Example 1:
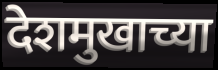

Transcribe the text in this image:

देशमुखाच्या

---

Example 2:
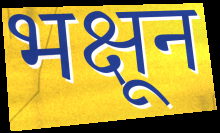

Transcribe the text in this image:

भक्षून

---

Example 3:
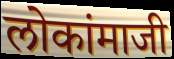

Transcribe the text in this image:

लोकांमाजी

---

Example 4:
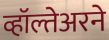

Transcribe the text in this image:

व्हॉल्तेअरने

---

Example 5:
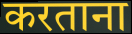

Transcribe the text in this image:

करताना